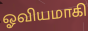
ஓவியமாகி